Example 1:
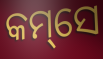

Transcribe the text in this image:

କମ୍‌ସେ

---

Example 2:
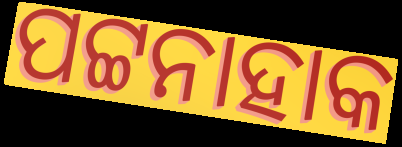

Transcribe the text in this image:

ପଟ୍ଟନାହାକ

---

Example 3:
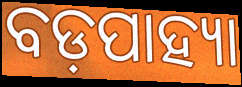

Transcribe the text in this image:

ବଡ଼ପାହ୍ୟା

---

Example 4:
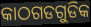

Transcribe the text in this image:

କାଠଗଡଗୁଡିକ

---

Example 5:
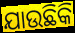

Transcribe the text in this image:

ଯାଉଛିକି